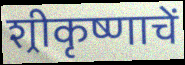
श्रीकृष्णाचें